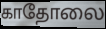
காதோலை